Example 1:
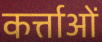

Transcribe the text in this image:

कर्त्ताओं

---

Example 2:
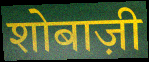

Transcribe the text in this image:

शोबाज़ी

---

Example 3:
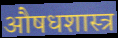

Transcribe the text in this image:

औषधशास्त्र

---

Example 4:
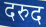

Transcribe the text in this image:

दरुद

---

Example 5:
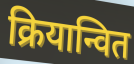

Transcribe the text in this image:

क्रियान्वित